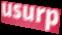
usurp